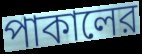
পাকালের